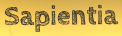
Sapientia